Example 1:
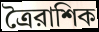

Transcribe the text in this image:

ত্রৈরাশিক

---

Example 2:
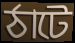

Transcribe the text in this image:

ঠাটে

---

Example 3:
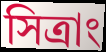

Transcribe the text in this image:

সিত্রাং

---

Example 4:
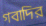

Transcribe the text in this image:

গবাদির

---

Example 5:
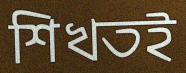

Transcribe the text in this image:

শিখতই